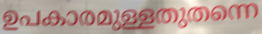
ഉപകാരമുള്ളതുതന്നെ